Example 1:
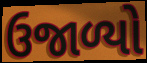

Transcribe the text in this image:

ઉજાળ્યો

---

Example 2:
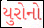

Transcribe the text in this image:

યુરોનો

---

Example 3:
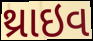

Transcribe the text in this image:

થ્રાઇવ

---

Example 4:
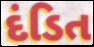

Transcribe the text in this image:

દંડિત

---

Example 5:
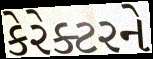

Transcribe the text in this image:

કેરેક્ટરને